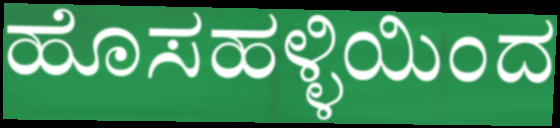
ಹೊಸಹಳ್ಳಿಯಿಂದ